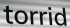
torrid